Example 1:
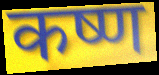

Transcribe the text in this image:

कष्ण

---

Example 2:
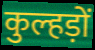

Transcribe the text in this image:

कुल्हड़ों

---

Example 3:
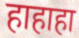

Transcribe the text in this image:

हाहाहा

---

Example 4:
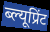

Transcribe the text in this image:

ब्ल्यूप्रिंट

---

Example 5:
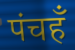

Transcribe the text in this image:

पंचहँ